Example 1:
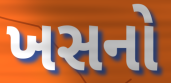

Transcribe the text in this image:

ખસનો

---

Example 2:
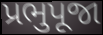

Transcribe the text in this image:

પ્રભુપૂજા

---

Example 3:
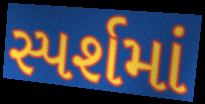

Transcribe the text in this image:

સ્પર્શમાં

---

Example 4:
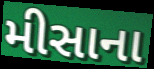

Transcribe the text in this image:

મીસાના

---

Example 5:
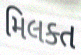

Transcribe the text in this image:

મિલક્ત